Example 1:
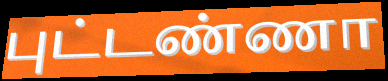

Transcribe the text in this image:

புட்டண்ணா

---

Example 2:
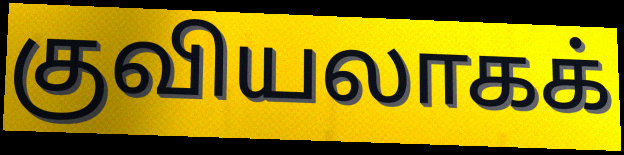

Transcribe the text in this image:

குவியலாகக்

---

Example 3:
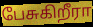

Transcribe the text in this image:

பேசுகிறீரா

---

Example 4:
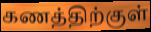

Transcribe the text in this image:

கணத்திற்குள்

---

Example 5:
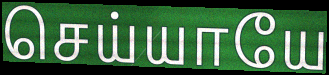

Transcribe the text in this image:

செய்யாயே